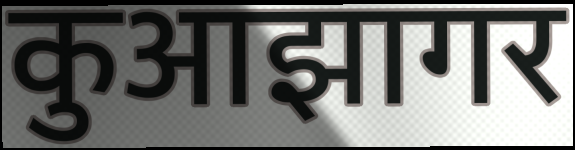
कुआझागर